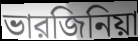
ভারজিনিয়া